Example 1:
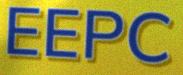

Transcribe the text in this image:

EEPC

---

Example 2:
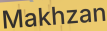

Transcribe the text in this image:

Makhzan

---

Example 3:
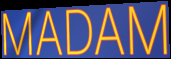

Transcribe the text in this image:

MADAM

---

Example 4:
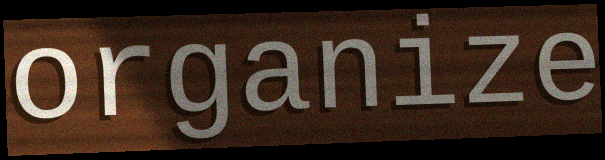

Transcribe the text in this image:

organize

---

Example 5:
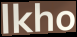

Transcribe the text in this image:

lkho